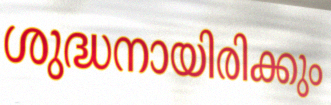
ശുദ്ധനായിരിക്കും